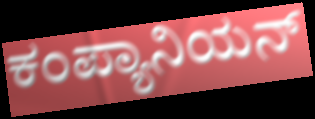
ಕಂಪ್ಯಾನಿಯನ್